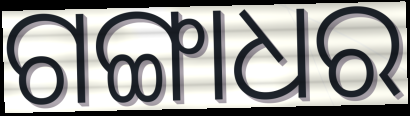
ଗଙ୍ଗାଧର